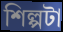
শিল্পটা